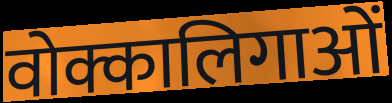
वोक्कालिगाओं